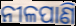
ନୀଳପାଣି